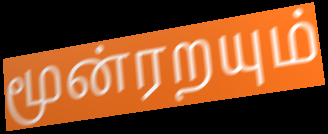
மூன்ரறயும்